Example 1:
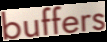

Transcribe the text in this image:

buffers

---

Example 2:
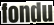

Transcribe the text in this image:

fondu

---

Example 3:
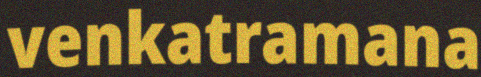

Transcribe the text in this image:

venkatramana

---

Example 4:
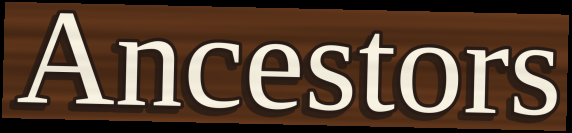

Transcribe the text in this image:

Ancestors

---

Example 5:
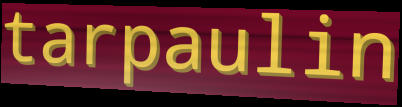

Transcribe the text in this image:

tarpaulin